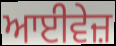
ਆਈਵੇਜ਼